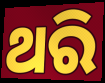
ଥରି